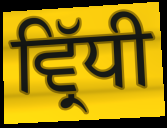
ਵ੍ਰਿੱਧੀ